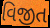
વિજીત